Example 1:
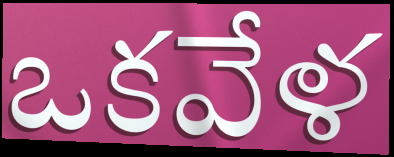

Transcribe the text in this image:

ఒకవేళ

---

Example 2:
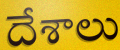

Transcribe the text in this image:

దేశాలు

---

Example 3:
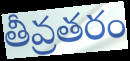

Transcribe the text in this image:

తీవ్రతరం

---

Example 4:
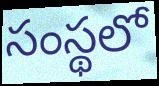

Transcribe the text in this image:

సంస్థలో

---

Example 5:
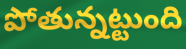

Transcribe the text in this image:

పోతున్నట్టుంది